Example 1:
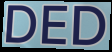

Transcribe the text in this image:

DED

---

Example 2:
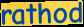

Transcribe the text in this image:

rathod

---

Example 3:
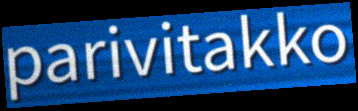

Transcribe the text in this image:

parivitakko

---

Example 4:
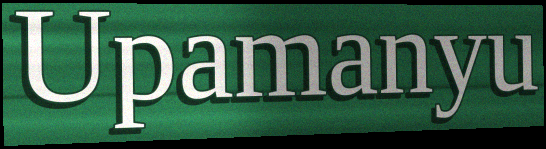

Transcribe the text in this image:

Upamanyu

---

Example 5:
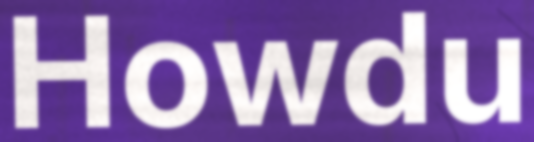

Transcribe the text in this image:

Howdu